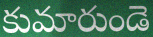
కుమారుండె